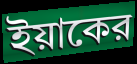
ইয়াকের